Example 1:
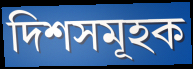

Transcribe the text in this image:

দিশসমূহক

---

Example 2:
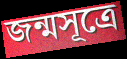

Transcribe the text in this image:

জন্মসূত্ৰে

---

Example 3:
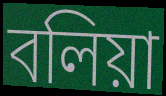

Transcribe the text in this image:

বলিয়া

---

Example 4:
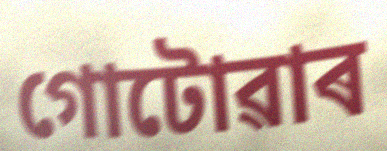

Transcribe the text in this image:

গোটোৱাৰ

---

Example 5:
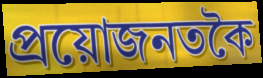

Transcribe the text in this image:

প্ৰয়োজনতকৈ